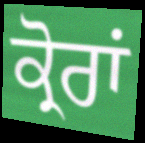
ਕ੍ਰੋਰਾਂ